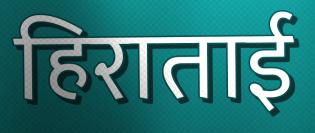
हिराताई